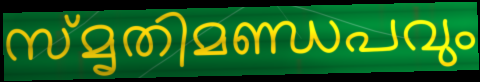
സ്മൃതിമണ്ഡപവും